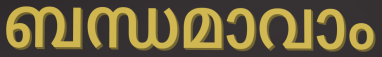
ബന്ധമാവാം